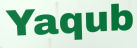
Yaqub